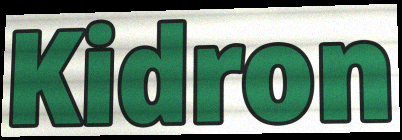
Kidron